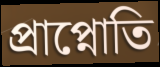
প্রাপ্নোতি